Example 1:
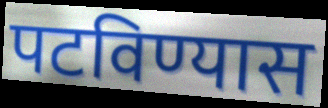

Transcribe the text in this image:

पटविण्यास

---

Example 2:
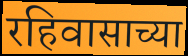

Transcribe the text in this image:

रहिवासाच्या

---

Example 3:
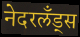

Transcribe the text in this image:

नेदरलँड्स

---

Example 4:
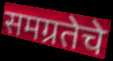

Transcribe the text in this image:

समग्रतेचे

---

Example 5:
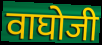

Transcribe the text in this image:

वाघोजी